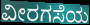
ವೀರಗಸೆಯ